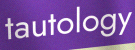
tautology